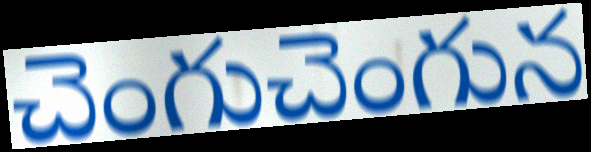
చెంగుచెంగున